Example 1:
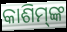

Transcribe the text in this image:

କାଶିମ୍‍ଙ୍କ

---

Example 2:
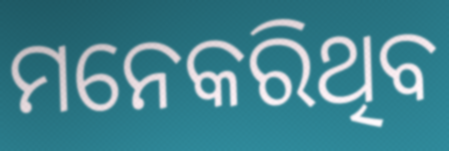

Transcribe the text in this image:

ମନେକରିଥିବ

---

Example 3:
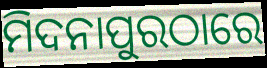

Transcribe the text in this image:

ମିଦନାପୁରଠାରେ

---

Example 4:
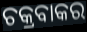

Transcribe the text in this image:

ଚକ୍ରବାକର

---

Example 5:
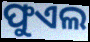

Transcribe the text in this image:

ଫୁଏଲ